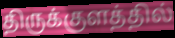
திருக்குளத்தில்